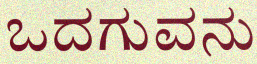
ಒದಗುವನು